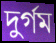
দুৰ্গম